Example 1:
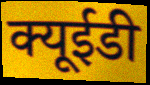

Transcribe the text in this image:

क्यूईडी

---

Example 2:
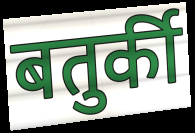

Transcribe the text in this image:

बतुर्की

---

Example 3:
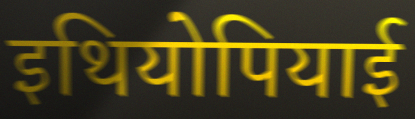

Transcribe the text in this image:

इथियोपियाई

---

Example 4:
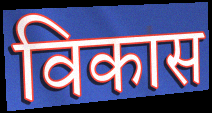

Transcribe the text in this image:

विकास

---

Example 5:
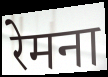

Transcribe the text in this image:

रेमना